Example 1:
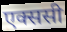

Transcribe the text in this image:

एक्ससी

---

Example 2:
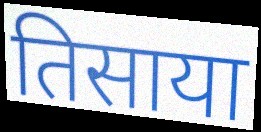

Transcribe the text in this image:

तिसाया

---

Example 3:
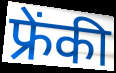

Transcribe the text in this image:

फ्रेंकी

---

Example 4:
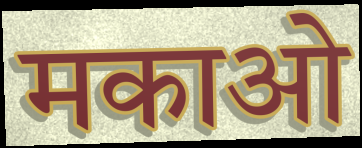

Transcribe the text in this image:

मकाओ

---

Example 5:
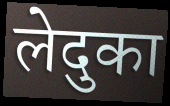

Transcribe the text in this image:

लेदुका